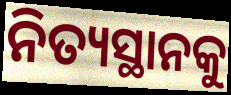
ନିତ୍ୟସ୍ଥାନକୁ